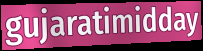
gujaratimidday